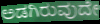
ಅಡಗಿರುವುದೇ